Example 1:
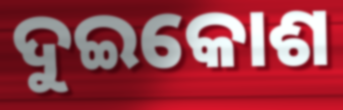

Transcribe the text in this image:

ଦୁଇକୋଶ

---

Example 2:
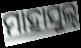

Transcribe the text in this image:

ମାହାସୁଲ୍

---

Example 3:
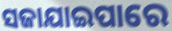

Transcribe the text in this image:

ସଜାଯାଇପାରେ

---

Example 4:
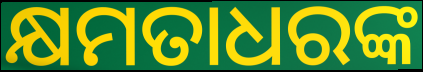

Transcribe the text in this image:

କ୍ଷମତାଧରଙ୍କ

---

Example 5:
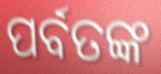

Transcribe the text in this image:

ପର୍ବତଙ୍କ